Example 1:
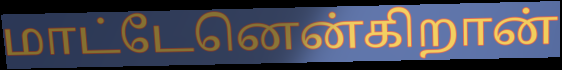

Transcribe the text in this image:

மாட்டேனென்கிறான்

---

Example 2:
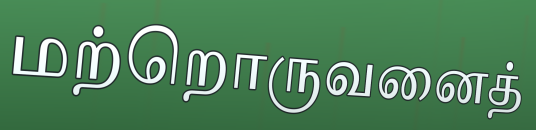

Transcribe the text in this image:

மற்றொருவனைத்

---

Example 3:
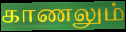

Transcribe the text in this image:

காணலும்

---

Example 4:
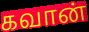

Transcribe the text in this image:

கவான்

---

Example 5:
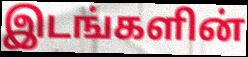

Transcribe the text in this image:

இடங்களின்